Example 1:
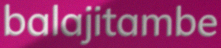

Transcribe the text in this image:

balajitambe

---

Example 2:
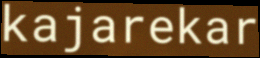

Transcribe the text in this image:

kajarekar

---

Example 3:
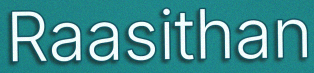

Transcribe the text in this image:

Raasithan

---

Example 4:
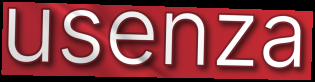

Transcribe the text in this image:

usenza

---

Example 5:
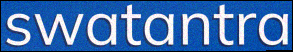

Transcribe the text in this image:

swatantra